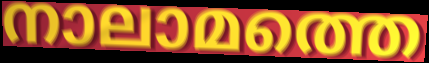
നാലാമത്തെ